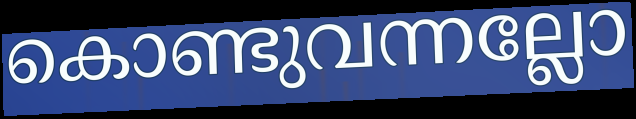
കൊണ്ടുവന്നല്ലോ